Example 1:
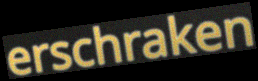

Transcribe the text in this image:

erschraken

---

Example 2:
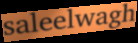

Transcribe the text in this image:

saleelwagh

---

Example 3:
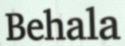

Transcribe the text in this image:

Behala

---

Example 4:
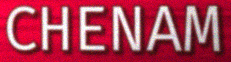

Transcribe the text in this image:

CHENAM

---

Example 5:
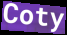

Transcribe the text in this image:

Coty